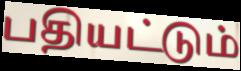
பதியட்டும்